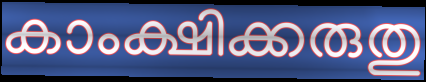
കാംക്ഷിക്കരുതു